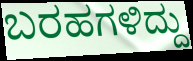
ಬರಹಗಳಿದ್ದು